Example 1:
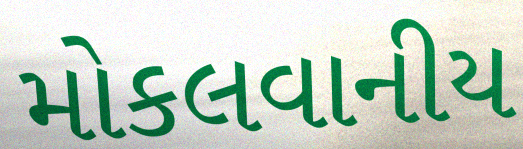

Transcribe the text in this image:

મોકલવાનીય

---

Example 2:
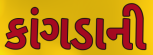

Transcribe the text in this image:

કાંગડાની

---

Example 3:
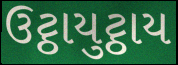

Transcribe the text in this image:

ઉટ્ઠાયુટ્ઠાય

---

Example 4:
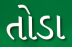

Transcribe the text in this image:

તોડા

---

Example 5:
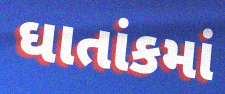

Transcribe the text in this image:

ઘાતાંકમાં